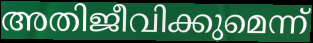
അതിജീവിക്കുമെന്ന്